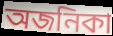
অজনিকা